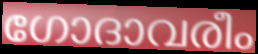
ഗോദാവരീം